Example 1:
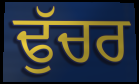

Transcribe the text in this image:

ਢੁੱਚਰ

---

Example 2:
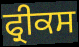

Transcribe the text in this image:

ਫ੍ਰੀਕਸ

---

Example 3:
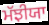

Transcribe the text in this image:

ਮੱਝੀਯਾ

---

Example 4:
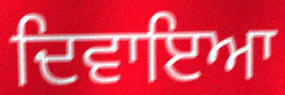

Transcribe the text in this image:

ਦਿਵਾਇਆ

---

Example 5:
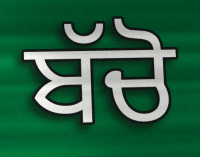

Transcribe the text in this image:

ਬੱਚੋ